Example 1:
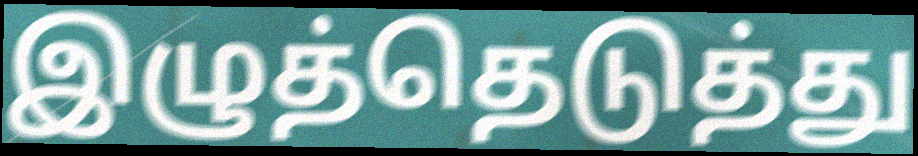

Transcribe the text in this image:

இழுத்தெடுத்து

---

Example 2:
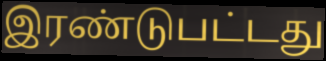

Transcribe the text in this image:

இரண்டுபட்டது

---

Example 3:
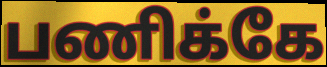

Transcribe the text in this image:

பணிக்கே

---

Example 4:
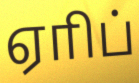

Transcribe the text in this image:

ஏரிப்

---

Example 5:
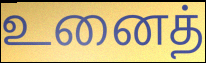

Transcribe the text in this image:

உனைத்